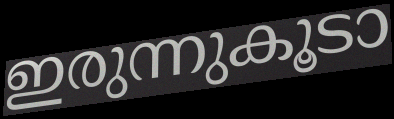
ഇരുന്നുകൂടാ